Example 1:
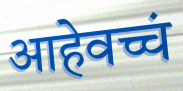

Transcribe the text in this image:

आहेवच्चं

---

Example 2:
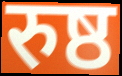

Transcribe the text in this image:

रुष्ठ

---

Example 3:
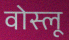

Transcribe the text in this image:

वोस्लू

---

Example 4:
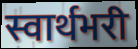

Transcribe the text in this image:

स्वार्थभरी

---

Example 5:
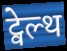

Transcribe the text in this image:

ट्वेल्थ